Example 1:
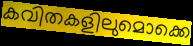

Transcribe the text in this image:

കവിതകളിലുമൊക്കെ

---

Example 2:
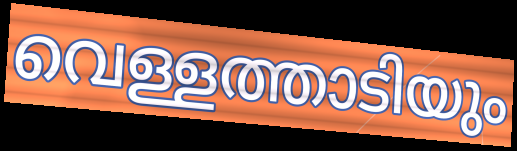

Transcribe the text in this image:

വെള്ളത്താടിയും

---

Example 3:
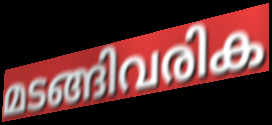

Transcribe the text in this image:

മടങ്ങിവരിക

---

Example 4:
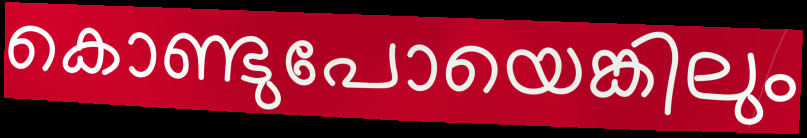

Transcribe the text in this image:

കൊണ്ടുപോയെങ്കിലും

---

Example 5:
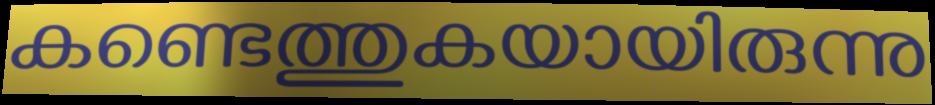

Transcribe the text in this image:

കണ്ടെത്തുകയായിരുന്നു